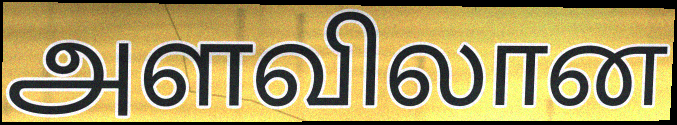
அளவிலான